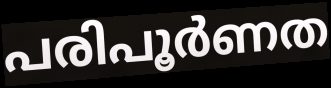
പരിപൂർണത